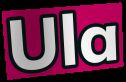
Ula